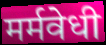
मर्मवेधी